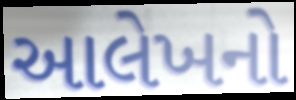
આલેખનો